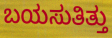
ಬಯಸುತಿತ್ತು